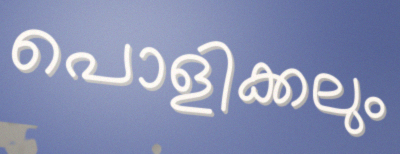
പൊളിക്കലും